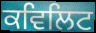
ਕਵਿਲਿਟ